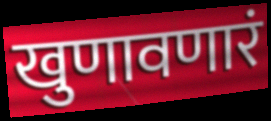
खुणावणारं